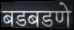
बडबडणे